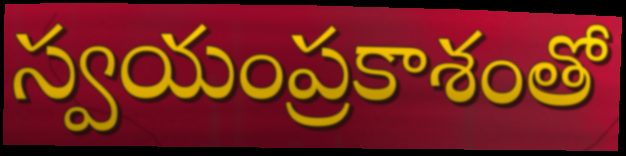
స్వయంప్రకాశంతో